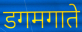
डगमगाते